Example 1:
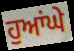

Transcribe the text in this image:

ਹੁਆਂਘੇ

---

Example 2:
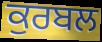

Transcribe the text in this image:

ਕੁਰਬਲ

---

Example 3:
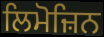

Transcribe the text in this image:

ਲਿਮੋਜ਼ਿਨ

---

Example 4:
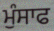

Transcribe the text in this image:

ਮੁੰਸਾਫ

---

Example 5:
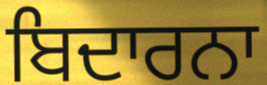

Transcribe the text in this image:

ਬਿਦਾਰਨਾ